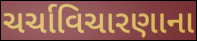
ચર્ચાવિચારણાના